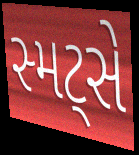
સ્મટ્સે